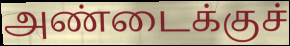
அண்டைக்குச்